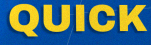
QUICK